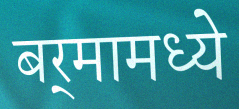
बर्मामध्ये